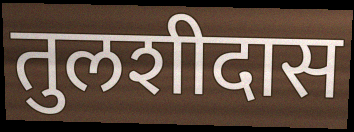
तुलशीदास